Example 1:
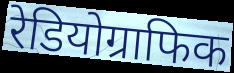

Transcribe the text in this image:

रेडियोग्राफिक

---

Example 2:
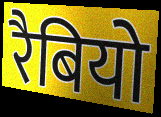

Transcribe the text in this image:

रैबियो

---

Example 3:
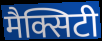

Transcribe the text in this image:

मैक्सिटी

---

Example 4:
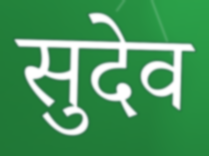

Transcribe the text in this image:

सुदेव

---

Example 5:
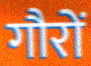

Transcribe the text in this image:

गौरों